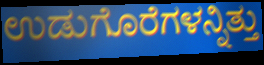
ಉಡುಗೊರೆಗಳನ್ನಿತ್ತು